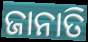
ଜାନାତି